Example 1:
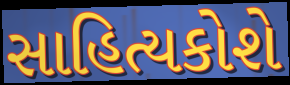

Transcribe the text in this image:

સાહિત્યકોશે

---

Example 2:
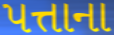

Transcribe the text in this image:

પત્તાના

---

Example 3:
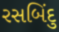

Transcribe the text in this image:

રસબિંદુ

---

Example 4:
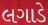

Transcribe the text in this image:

લગાડે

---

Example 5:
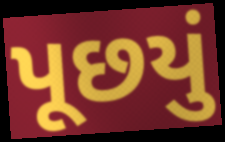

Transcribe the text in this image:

પૂછયું